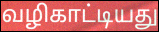
வழிகாட்டியது